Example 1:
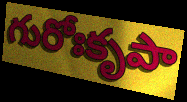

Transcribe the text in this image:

గురోఃకృపా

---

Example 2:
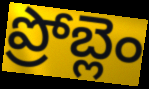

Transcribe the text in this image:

ప్రోబ్లెం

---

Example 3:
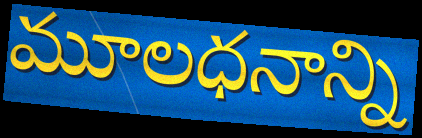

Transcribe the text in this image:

మూలధనాన్ని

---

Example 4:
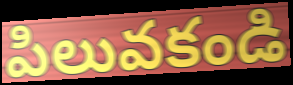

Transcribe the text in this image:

పిలువకండి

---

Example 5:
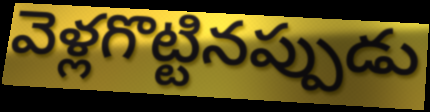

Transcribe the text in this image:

వెళ్లగొట్టినప్పుడు